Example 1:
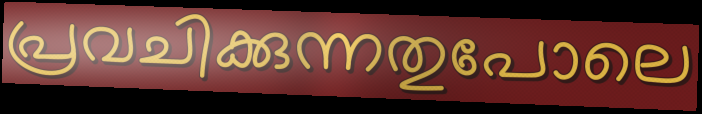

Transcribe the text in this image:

പ്രവചിക്കുന്നതുപോലെ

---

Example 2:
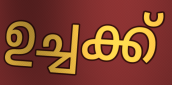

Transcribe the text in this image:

ഉച്ചക്ക്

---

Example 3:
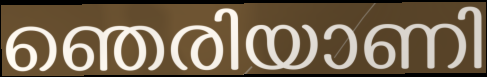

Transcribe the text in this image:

ഞെരിയാണി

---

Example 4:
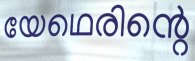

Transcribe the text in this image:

യേഥെരിന്റെ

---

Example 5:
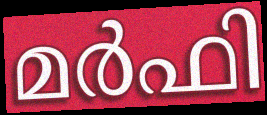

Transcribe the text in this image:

മർഫി